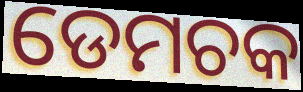
ଡେମଚକ